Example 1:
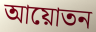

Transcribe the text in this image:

আয়োতন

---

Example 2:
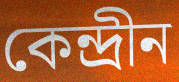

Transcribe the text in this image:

কেন্দ্রীন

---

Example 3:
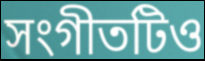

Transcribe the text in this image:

সংগীতটিও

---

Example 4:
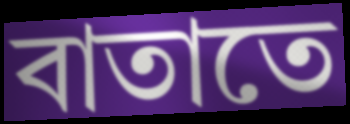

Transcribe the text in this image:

বাতাতে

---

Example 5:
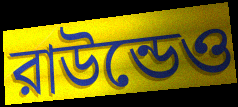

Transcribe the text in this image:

রাউন্ডেও